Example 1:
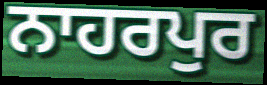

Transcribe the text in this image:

ਨਾਹਰਪੁਰ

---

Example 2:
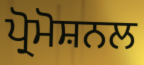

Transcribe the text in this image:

ਪ੍ਰੋਮੋਸ਼ਨਲ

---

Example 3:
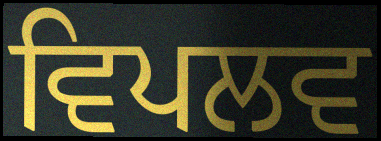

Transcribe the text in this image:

ਵਿਪਲਵ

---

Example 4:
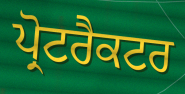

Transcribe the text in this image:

ਪ੍ਰੋਟਰੈਕਟਰ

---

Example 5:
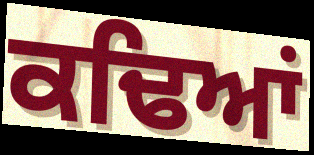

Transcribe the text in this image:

ਕਢਿਆਂ